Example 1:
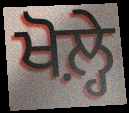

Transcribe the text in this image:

ਖੋਲ਼੍ਹੇ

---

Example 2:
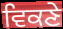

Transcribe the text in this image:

ਵਿਕਣੇ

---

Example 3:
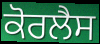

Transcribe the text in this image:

ਕੋਰਲੈਸ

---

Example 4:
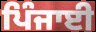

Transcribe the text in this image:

ਪਿੰਜਾਈ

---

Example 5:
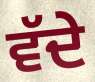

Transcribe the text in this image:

ਵੱਦੇ